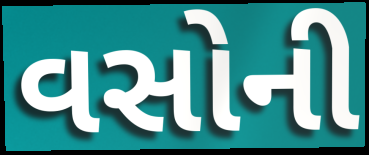
વસોની